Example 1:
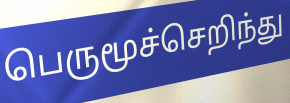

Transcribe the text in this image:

பெருமூச்செறிந்து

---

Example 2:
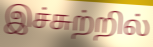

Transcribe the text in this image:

இச்சுற்றில்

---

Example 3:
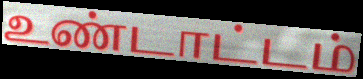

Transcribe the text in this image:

உண்டாட்டம்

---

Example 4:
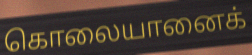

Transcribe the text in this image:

கொலையானைக்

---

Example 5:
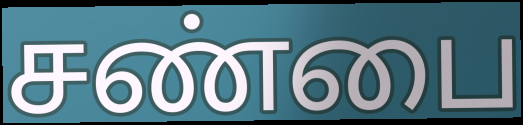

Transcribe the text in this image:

சண்பை